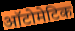
ऑटोमेटिक